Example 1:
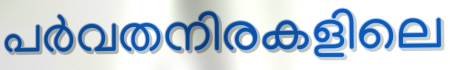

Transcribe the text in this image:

പർവതനിരകളിലെ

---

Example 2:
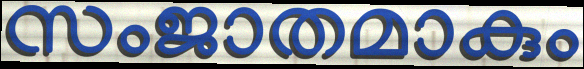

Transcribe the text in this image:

സംജാതമാകും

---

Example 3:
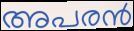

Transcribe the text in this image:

അപരൻ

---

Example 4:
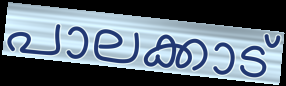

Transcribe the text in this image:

പാലക്കാട്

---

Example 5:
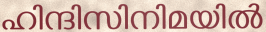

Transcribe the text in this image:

ഹിന്ദിസിനിമയിൽ